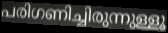
പരിഗണിച്ചിരുന്നുള്ളൂ